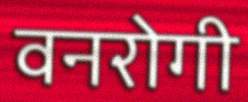
वनरोगी